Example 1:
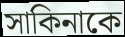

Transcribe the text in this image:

সাকিনাকে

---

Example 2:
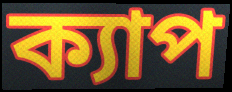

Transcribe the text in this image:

ক্যাপ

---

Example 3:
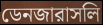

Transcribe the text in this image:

ডেনজারাসলি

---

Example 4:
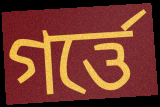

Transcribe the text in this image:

গর্ত্তে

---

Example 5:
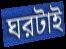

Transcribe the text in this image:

ঘরটাই